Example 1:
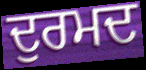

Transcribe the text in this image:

ਦੁਰਮਦ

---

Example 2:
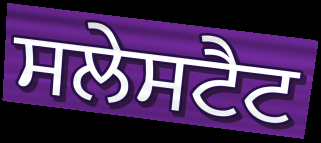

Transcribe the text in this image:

ਸਲੇਸਟੈਟ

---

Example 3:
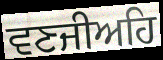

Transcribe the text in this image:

ਵਣਜੀਅਹਿ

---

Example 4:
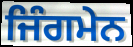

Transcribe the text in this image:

ਜਿੰਗਮੇਨ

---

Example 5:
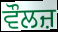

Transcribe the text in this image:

ਵੌਲਜ਼